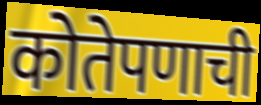
कोतेपणाची